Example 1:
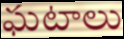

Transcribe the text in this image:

ఘటాలు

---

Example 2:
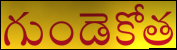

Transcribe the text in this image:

గుండెకోత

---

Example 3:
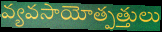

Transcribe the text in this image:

వ్యవసాయోత్పత్తులు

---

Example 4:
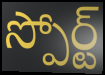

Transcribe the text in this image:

స్పోర్ట్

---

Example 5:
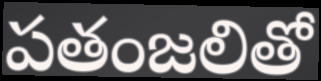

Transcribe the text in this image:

పతంజలితో